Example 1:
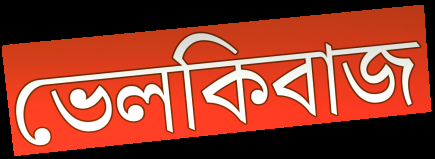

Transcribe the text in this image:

ভেলকিবাজ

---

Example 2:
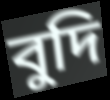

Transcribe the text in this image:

বুদি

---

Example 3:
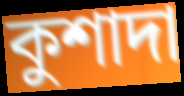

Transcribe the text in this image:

কুশাদা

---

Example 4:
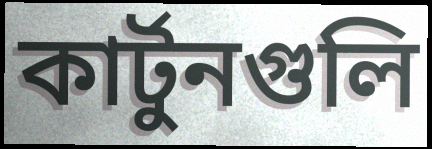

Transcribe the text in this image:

কার্টুনগুলি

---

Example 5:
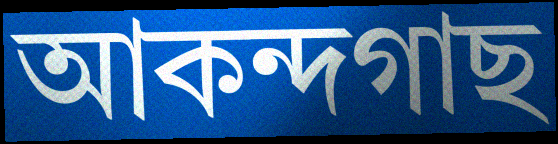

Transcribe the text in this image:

আকন্দগাছ